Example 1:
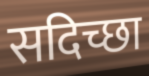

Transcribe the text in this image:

सदिच्छा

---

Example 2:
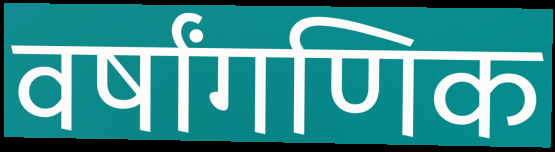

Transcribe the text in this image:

वर्षांगणिक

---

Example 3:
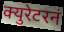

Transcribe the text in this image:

क्युरेटरनं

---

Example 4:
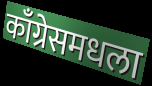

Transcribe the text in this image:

काँग्रेसमधला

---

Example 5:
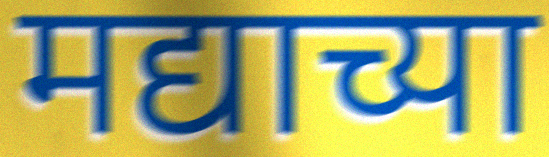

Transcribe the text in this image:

मद्याच्या